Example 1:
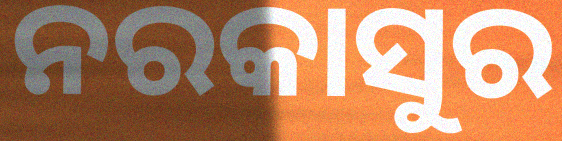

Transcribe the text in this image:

ନରକାସୁର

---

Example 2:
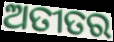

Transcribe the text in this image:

ଅତୀତର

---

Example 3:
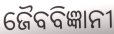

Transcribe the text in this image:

ଜୈବବିଜ୍ଞାନୀ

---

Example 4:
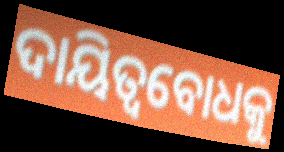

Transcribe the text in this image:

ଦାୟିତ୍ୱବୋଧକୁ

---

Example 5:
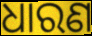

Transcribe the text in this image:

ଧାରଣ